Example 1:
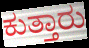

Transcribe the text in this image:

ಕುತ್ತಾರು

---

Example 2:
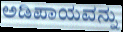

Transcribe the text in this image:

ಅಡಿಪಾಯವನ್ನು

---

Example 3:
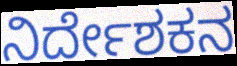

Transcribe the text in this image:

ನಿರ್ದೇಶಕನ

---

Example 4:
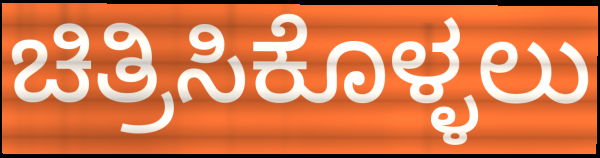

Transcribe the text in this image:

ಚಿತ್ರಿಸಿಕೊಳ್ಳಲು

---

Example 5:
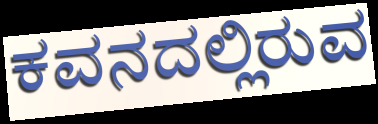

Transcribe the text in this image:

ಕವನದಲ್ಲಿರುವ